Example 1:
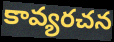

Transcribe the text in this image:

కావ్యరచన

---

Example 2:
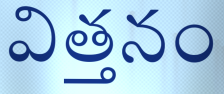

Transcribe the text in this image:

విత్తనం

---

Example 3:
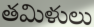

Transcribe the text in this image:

తమిళులు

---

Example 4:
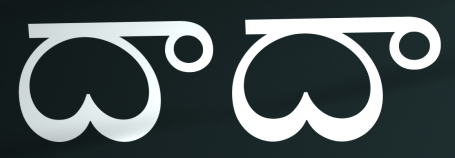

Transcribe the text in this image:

దాదా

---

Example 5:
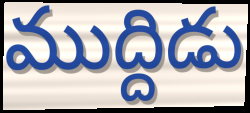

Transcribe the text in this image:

ముద్దిడు